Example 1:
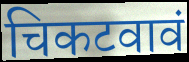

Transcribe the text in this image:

चिकटवावं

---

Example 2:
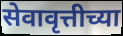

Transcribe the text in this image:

सेवावृत्तीच्या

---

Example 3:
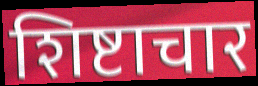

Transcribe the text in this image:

शिष्टाचार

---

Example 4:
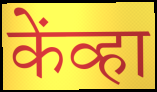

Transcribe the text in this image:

केंव्हा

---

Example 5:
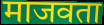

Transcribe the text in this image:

माजवता